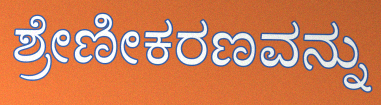
ಶ್ರೇಣೀಕರಣವನ್ನು